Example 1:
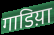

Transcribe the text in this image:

गाडिय़ा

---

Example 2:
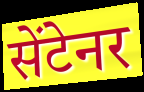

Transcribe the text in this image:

सेंटेनर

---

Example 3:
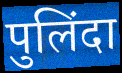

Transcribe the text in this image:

पुलिंदा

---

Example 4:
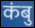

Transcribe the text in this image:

कंबु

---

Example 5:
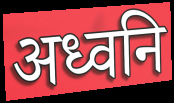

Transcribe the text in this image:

अध्वनि